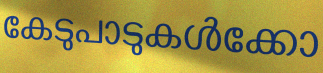
കേടുപാടുകൾക്കോ